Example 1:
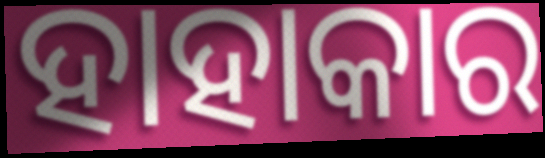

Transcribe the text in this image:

ହାହାକାର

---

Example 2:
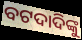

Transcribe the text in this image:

ବଟଦାଦିଙ୍କୁ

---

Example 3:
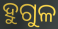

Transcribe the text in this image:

ହୁଗୁଳ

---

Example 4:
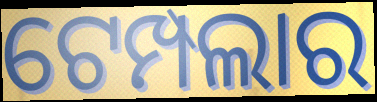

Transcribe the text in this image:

ଟେମ୍ପଲାର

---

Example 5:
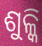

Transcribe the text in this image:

ଶୁଳ୍କି